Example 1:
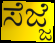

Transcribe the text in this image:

ಸೆಜ್ಜೆ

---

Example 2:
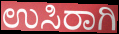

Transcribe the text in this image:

ಉಸಿರಾಗಿ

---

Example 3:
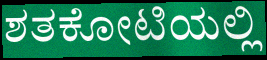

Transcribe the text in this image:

ಶತಕೋಟಿಯಲ್ಲಿ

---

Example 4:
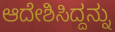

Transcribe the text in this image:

ಆದೇಶಿಸಿದ್ದನ್ನು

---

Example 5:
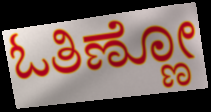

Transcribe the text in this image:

ಓತಿಣ್ಣೋ